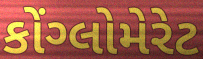
કોંગ્લોમેરેટ